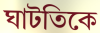
ঘাটতিকে